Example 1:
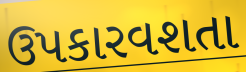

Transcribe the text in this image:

ઉપકારવશતા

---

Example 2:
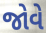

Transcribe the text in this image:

જોવે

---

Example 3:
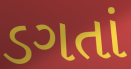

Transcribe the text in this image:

ડગતાં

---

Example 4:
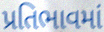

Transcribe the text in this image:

પ્રતિભાવમાં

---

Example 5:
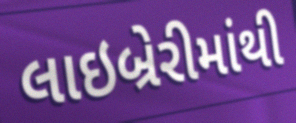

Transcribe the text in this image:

લાઇબ્રેરીમાંથી